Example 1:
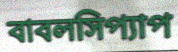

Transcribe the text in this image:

বাবলসিপ্যাপ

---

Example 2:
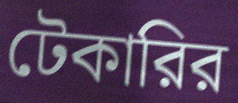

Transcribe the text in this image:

টেকারির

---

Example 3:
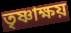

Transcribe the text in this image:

তৃষ্ণাক্ষয়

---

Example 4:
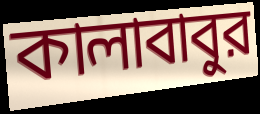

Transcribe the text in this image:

কালাবাবুর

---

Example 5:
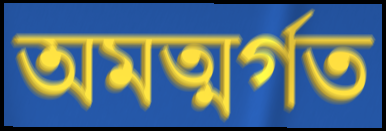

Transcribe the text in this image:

অমত্মর্গত